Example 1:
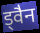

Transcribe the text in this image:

ड्वैन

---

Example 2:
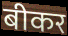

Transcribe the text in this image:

बीकर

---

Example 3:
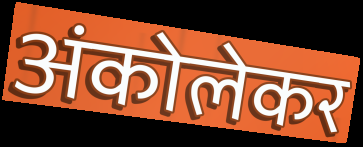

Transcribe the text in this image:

अंकोलेकर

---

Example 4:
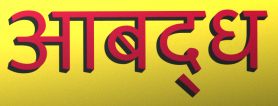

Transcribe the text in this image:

आबद्ध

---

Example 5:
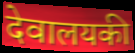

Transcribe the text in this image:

देवालयकी